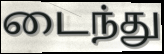
டைந்து